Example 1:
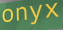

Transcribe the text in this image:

onyx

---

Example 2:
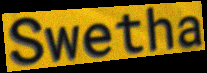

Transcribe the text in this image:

Swetha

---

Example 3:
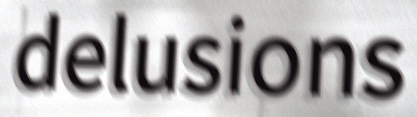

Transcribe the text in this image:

delusions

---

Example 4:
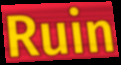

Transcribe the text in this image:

Ruin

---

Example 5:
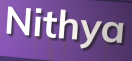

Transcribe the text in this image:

Nithya